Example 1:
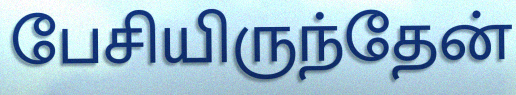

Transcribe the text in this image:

பேசியிருந்தேன்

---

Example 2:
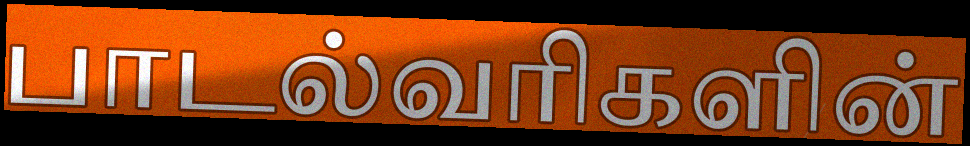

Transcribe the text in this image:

பாடல்வரிகளின்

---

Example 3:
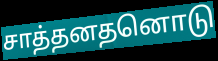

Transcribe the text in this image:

சாத்தனதனொடு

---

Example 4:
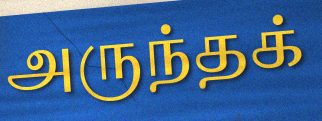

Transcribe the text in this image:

அருந்தக்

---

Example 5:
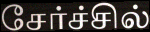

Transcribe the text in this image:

சேர்ச்சில்